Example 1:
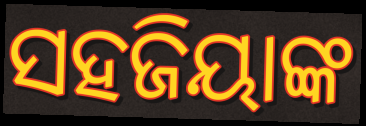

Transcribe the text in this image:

ସହଜିୟାଙ୍କ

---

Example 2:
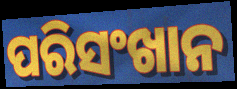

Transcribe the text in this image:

ପରିସଂଖାନ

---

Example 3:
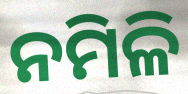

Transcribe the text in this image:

ନମିଳି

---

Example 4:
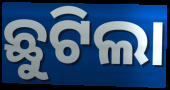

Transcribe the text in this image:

ଛୁଟିଲା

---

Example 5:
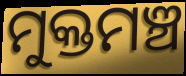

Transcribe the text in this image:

ମୁକ୍ତମଞ୍ଚ